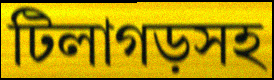
টিলাগড়সহ